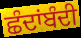
ਛੰਦਾਂਬੰਦੀ